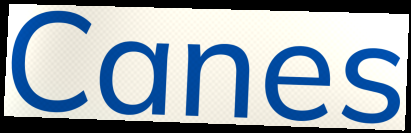
Canes